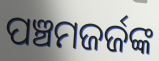
ପଞ୍ଚମଜର୍ଜଙ୍କ